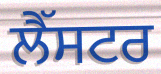
ਲੈੱਸਟਰ